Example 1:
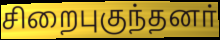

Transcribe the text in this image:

சிறைபுகுந்தனர்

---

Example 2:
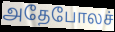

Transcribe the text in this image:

அதேபோலச்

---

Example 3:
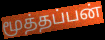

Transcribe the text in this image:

மூத்தப்பன்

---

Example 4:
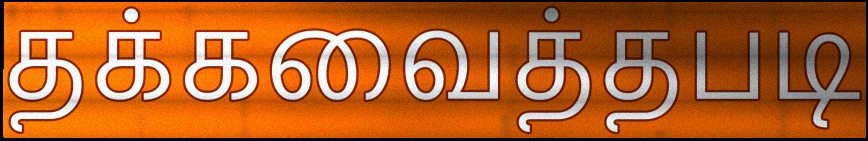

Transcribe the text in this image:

தக்கவைத்தபடி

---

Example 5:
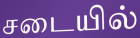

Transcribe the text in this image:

சடையில்